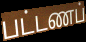
பட்டணப்